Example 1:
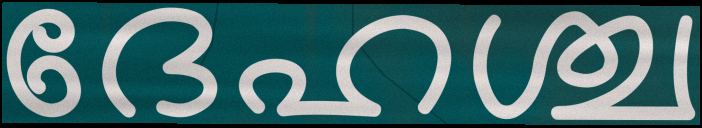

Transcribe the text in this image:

ദേഹശ്ച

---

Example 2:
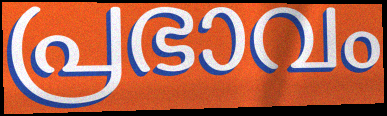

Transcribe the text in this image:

പ്രഭാവം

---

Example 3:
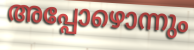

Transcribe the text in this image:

അപ്പോഴൊന്നും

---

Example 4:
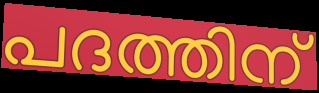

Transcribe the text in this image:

പദത്തിന്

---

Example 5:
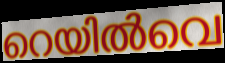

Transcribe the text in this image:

റെയിൽവെ